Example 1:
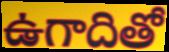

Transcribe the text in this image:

ఉగాదితో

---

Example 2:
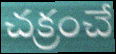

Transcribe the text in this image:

చక్రంచే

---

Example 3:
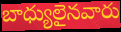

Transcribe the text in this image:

బాధ్యులైనవారు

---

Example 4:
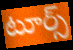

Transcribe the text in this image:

టూర్స్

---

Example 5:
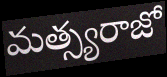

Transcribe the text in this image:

మత్స్యరాజో